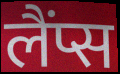
लैंप्स